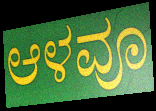
ಆಳವೂ